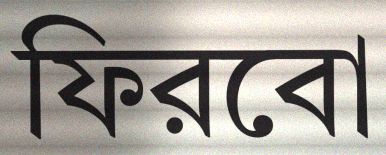
ফিরবো